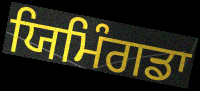
ਯਿਮਿੰਗਡਾ